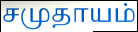
சமுதாயம்